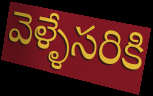
వెళ్ళేసరికి